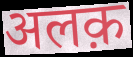
अलक़